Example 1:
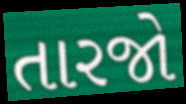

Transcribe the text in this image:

તારજો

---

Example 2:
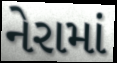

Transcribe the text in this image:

નેરામાં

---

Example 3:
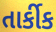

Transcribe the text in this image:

તાર્કીક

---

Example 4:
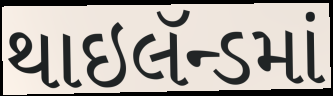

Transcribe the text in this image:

થાઇલૅન્ડમાં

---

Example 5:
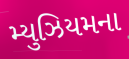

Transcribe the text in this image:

મ્યુઝિયમના